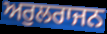
ਅਰੁਲਰਾਜਨ